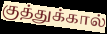
குத்துக்கால்